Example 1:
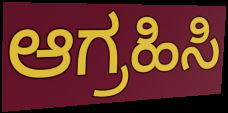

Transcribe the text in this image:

ಆಗ್ರಹಿಸಿ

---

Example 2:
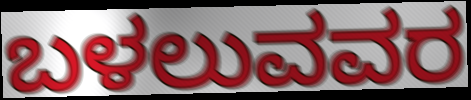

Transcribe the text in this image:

ಬಳಲುವವರ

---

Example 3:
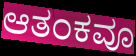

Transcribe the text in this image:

ಆತಂಕವೂ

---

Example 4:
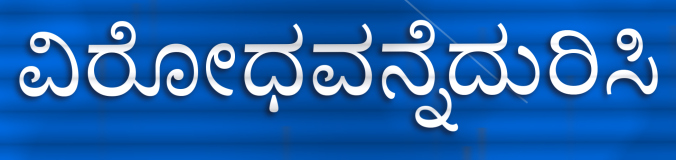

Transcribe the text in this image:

ವಿರೋಧವನ್ನೆದುರಿಸಿ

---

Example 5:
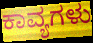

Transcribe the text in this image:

ಕಾವ್ಯಗಳು